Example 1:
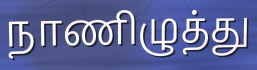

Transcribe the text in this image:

நாணிழுத்து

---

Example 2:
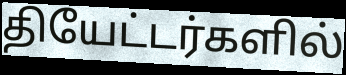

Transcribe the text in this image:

தியேட்டர்களில்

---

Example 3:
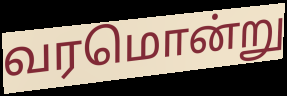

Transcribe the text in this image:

வரமொன்று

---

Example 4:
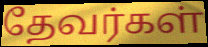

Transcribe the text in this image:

தேவர்கள்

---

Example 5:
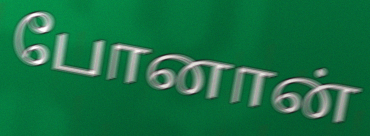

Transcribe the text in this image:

போனான்